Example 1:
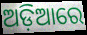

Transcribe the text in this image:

ଅଡ଼ିଆରେ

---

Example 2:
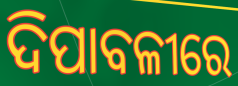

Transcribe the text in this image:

ଦିପାବଳୀରେ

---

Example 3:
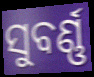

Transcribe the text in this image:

ସୁବର୍ଣ୍ଣ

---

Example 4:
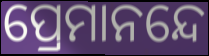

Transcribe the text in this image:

ପ୍ରେମାନନ୍ଦେ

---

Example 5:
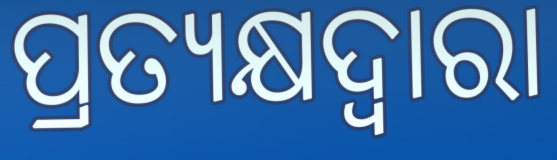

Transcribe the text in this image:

ପ୍ରତ୍ୟକ୍ଷଦ୍ବାରା